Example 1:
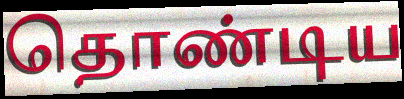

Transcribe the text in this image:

தொண்டிய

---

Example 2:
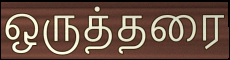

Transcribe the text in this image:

ஒருத்தரை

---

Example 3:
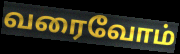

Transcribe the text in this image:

வரைவோம்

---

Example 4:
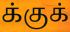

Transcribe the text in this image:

க்குக்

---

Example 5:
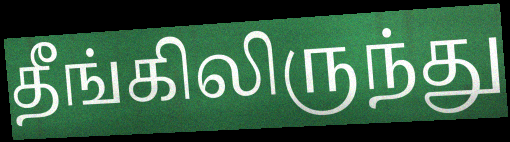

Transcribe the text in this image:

தீங்கிலிருந்து